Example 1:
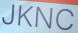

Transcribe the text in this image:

JKNC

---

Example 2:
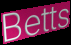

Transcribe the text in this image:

Betts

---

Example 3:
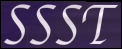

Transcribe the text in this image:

SSST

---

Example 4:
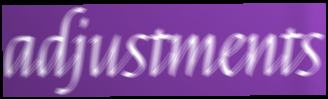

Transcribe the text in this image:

adjustments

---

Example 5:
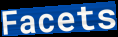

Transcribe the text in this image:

Facets